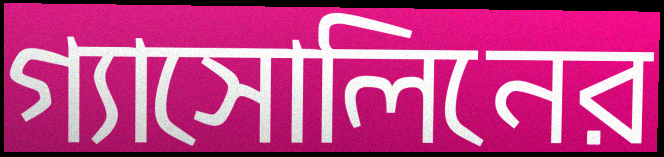
গ্যাসোলিনের